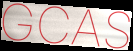
GCAS